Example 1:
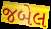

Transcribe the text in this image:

જબેલ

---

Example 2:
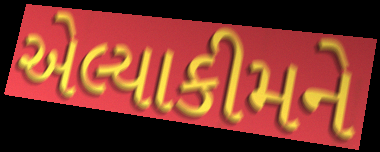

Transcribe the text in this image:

એલ્યાકીમને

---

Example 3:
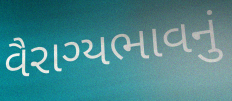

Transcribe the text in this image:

વૈરાગ્યભાવનું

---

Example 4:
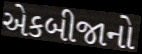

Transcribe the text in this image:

એકબીજાનો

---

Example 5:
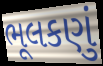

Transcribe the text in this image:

ભૂલકણું